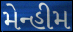
મેન્હીમ